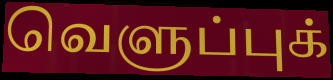
வெளுப்புக்